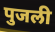
पुजली